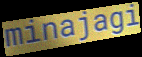
minajagi